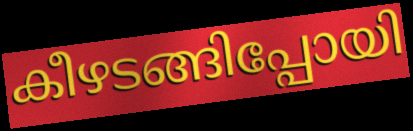
കീഴടങ്ങിപ്പോയി